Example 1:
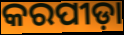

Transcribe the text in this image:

କରପୀଡ଼ା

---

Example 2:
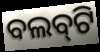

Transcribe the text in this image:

ବଲବ୍‌ଟି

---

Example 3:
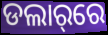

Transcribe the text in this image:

ଡଲାର୍‌ରେ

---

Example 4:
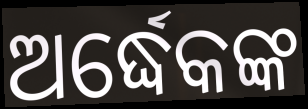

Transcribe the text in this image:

ଅର୍ଦ୍ଧେକଙ୍କ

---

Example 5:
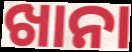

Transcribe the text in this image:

ଖାନା